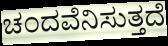
ಚಂದವೆನಿಸುತ್ತದೆ